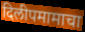
दिलीपमामाचा